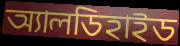
অ্যালডিহাইড